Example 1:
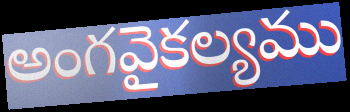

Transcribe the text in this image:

అంగవైకల్యము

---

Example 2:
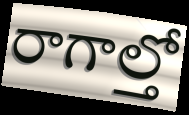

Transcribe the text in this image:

రాగాల్తో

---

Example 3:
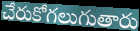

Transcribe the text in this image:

చేరుకోగలుగుతారు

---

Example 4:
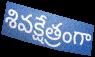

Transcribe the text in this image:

శివక్షేత్రంగా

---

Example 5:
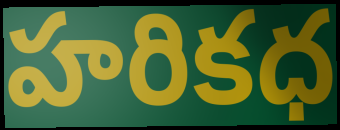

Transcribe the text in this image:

హరికధ